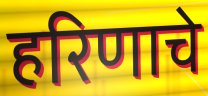
हरिणाचे